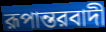
রূপান্তরবাদী